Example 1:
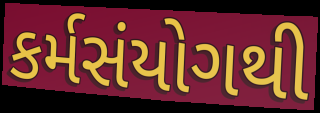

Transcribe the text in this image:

કર્મસંયોગથી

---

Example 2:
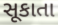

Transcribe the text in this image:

સૂકાતા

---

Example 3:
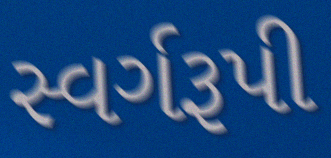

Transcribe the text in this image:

સ્વર્ગરૂપી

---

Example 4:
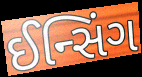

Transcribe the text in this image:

ઈન્સિંગ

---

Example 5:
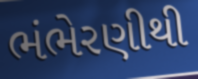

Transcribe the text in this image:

ભંભેરણીથી